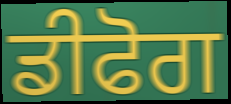
ਡੀਫੋਗ